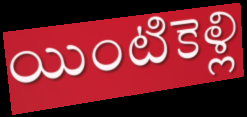
యింటికెళ్లి